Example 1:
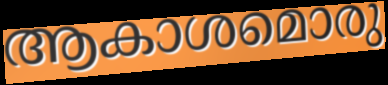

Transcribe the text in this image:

ആകാശമൊരു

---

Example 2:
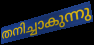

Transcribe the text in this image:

തനിച്ചാകുന്നു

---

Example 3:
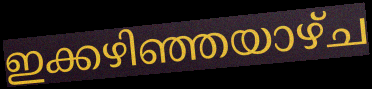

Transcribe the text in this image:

ഇക്കഴിഞ്ഞയാഴ്ച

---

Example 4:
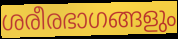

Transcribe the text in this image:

ശരീരഭാഗങ്ങളും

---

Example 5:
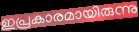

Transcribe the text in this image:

ഇപ്രകാരമായിരുന്നു